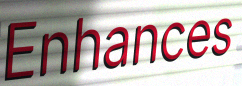
Enhances